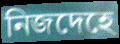
নিজদেহে